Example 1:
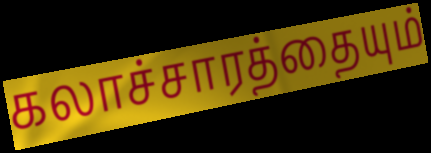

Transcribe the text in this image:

கலாச்சாரத்தையும்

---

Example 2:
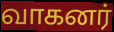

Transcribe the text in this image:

வாகனர்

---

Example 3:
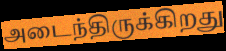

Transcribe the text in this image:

அடைந்திருக்கிறது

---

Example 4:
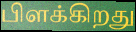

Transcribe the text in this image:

பிளக்கிறது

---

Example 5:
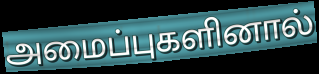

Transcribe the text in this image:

அமைப்புகளினால்